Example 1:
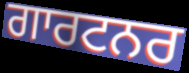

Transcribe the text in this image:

ਗਾਰਟਨਰ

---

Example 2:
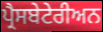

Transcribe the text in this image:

ਪ੍ਰੈਸਬੇਟੇਰੀਅਨ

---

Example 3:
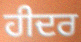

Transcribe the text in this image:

ਹੀਦਰ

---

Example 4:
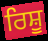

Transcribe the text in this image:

ਰਿਸ਼ੂ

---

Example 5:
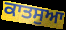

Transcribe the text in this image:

ਕਾਤਸੁਆ